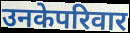
उनकेपरिवार